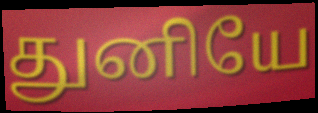
துனியே